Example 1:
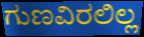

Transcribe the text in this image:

ಗುಣವಿರಲಿಲ್ಲ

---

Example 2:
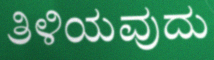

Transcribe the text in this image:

ತಿಳಿಯವುದು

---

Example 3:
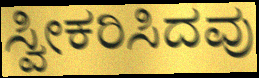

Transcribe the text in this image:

ಸ್ವೀಕರಿಸಿದವು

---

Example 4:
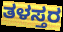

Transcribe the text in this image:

ತಳಸ್ತರ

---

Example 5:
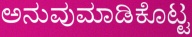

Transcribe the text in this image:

ಅನುವುಮಾಡಿಕೊಟ್ಟ